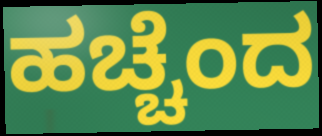
ಹಚ್ಚೆಂದ